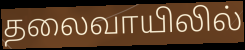
தலைவாயிலில்